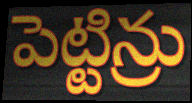
పెట్టిన్రు